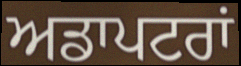
ਅਡਾਪਟਰਾਂ